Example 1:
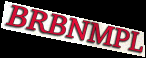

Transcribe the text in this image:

BRBNMPL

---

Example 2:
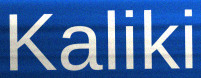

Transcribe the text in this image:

Kaliki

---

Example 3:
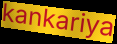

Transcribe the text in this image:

kankariya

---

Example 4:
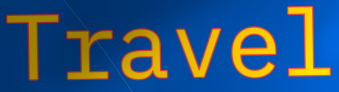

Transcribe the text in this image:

Travel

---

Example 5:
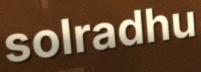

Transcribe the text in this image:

solradhu